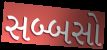
સબ્બસો